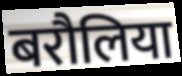
बरौलिया